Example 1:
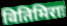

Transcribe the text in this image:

वितिमिराः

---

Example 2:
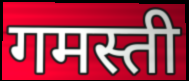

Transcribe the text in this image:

गमस्ती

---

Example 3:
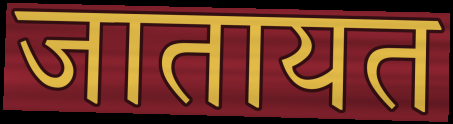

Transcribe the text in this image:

जातायत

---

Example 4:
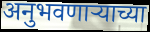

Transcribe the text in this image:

अनुभवणार्‍याच्या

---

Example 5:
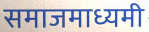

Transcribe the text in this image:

समाजमाध्यमी